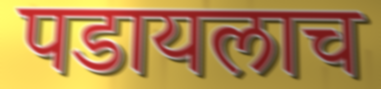
पडायलाच